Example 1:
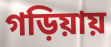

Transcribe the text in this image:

গড়িয়ায়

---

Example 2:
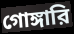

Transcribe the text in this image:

গোঙ্গারি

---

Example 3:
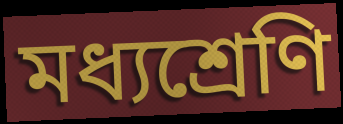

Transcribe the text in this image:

মধ্যশ্রেণি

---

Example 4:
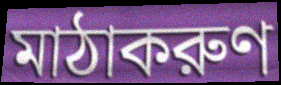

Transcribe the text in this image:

মাঠাকরুণ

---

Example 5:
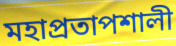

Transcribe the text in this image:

মহাপ্রতাপশালী